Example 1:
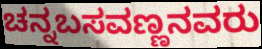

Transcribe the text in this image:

ಚನ್ನಬಸವಣ್ಣನವರು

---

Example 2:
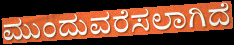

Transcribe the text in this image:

ಮುಂದುವರೆಸಲಾಗಿದೆ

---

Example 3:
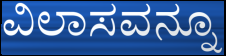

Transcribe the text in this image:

ವಿಲಾಸವನ್ನೂ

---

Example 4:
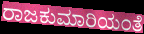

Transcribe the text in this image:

ರಾಜಕುಮಾರಿಯಂತೆ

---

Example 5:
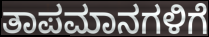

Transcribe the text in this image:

ತಾಪಮಾನಗಳಿಗೆ